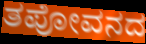
ತಪೋವನದ